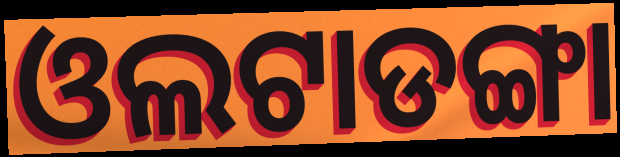
ଓଲଟାଡଙ୍ଗା